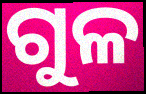
ଗୁଳ